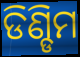
ଡିଣ୍ଡିମ